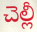
చెల్లీ